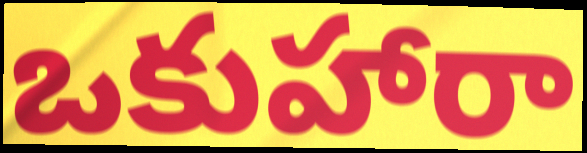
ఒకుహారా